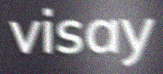
visay